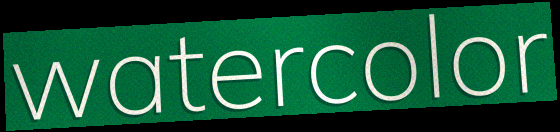
watercolor